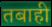
तबाही